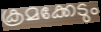
ക്രമക്കേടും